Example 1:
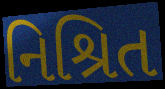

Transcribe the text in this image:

નિશ્રિત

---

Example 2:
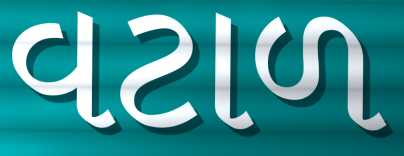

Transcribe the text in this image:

વટાળ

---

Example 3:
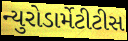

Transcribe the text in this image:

ન્યુરોડાર્મેટીટીસ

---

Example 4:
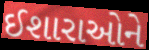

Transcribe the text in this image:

ઈશારાઓને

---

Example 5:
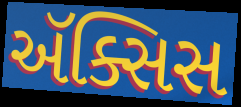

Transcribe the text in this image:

ઍક્સિસ